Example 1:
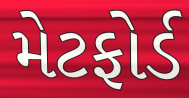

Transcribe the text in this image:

મેટફોર્ડ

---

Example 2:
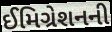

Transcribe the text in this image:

ઈમિગ્રેશનની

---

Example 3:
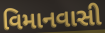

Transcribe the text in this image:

વિમાનવાસી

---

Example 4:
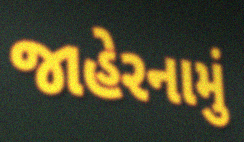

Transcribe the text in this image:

જાહેરનામું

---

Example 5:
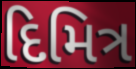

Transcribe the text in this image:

દિમિત્ર